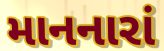
માનનારાં